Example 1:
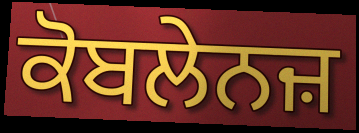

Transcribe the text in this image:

ਕੋਬਲੇਨਜ਼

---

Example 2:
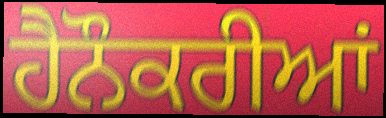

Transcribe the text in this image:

ਹੈਨੌਕਰੀਆਂ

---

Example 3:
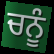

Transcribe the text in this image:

ਚਨੂੰ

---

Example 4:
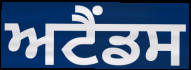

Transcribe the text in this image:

ਅਟੈਂਡਸ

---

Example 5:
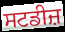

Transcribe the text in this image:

ਸਟਡੀਜ਼